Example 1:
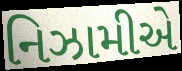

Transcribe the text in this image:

નિઝામીએ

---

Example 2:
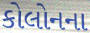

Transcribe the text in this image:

કોલોનના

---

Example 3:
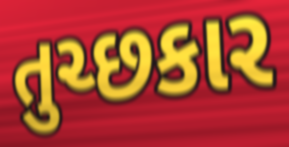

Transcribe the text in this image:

તુચ્છકાર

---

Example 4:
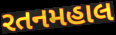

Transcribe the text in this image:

રતનમહાલ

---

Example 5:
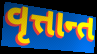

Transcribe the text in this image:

વૃત્તાન્ત